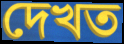
দেখত